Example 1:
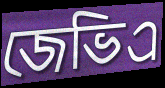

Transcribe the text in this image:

জেভিএ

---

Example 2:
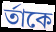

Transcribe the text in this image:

র্তাকে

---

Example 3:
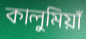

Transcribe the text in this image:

কালুমিয়াঁ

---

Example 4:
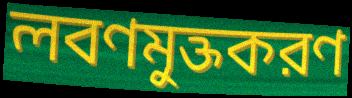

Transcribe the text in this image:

লবণমুক্তকরণ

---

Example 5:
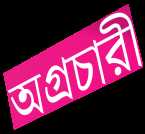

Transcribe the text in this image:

অগ্রচারী